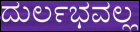
ದುರ್ಲಭವಲ್ಲ